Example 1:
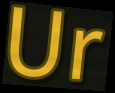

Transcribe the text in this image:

Ur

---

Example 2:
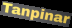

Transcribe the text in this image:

Tanpinar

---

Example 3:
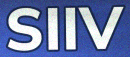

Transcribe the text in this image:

SIIV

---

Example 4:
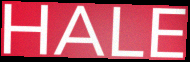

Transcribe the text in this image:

HALE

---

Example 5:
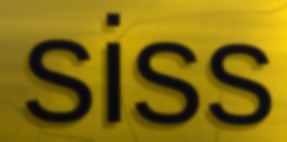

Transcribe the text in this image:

siss